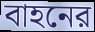
বাহনের